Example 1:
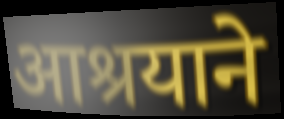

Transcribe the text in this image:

आश्रयाने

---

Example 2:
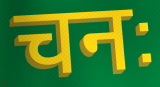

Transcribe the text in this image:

चनः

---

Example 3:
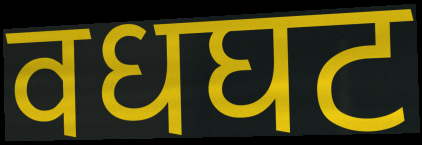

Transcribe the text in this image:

वधघट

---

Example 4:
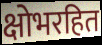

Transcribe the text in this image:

क्षोभरहित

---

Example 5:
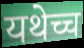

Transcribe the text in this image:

यथेच्च